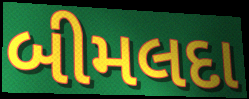
બીમલદા